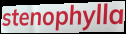
stenophylla